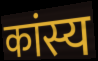
कांस्‍य